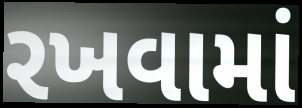
રખવામાં